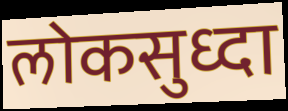
लोकसुध्दा